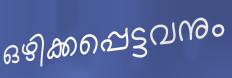
ഒഴിക്കപ്പെട്ടവനും